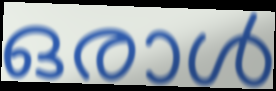
ഒരാൾ